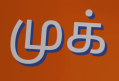
முக்